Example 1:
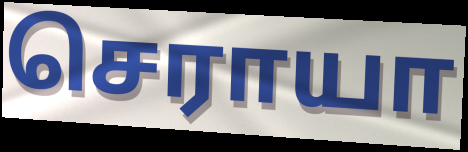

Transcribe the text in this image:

செராயா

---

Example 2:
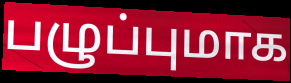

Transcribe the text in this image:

பழுப்புமாக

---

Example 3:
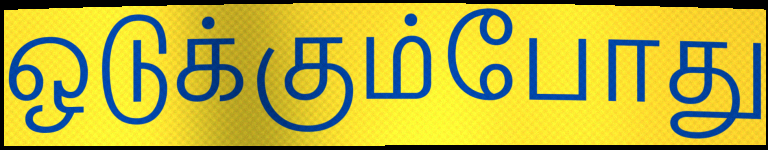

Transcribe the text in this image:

ஒடுக்கும்போது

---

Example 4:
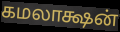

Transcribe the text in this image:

கமலாக்ஷன்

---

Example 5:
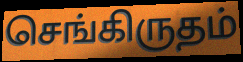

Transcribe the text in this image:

செங்கிருதம்